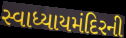
સ્વાધ્યાયમંદિરની